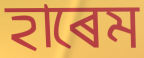
হাৰেম